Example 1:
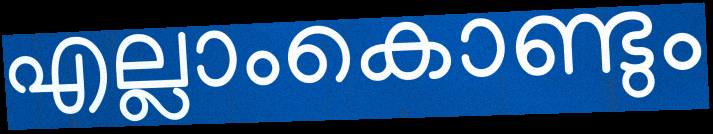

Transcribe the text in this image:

എല്ലാംകൊണ്ടും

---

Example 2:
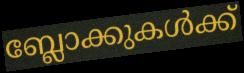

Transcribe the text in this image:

ബ്ലോക്കുകൾക്ക്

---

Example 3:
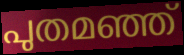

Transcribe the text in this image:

പുതമഞ്ഞ്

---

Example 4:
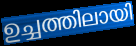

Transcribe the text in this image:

ഉച്ചത്തിലായി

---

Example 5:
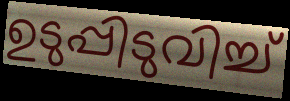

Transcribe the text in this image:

ഉടുപ്പിടുവിച്ച്